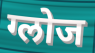
ग्लोज